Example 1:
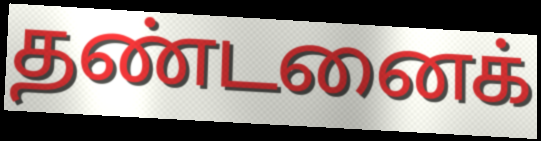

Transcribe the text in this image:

தண்டனைக்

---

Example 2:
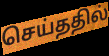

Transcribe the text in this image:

செய்ததில்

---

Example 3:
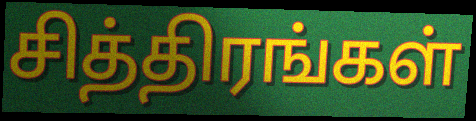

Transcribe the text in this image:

சித்திரங்கள்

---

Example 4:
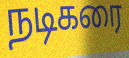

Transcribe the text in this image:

நடிகரை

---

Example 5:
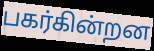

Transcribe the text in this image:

பகர்கின்றன